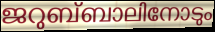
ജറുബ്‌ബാലിനോടും